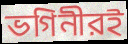
ভগিনীরই